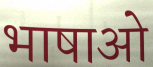
भाषाओ